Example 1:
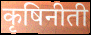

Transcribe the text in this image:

कृषिनीती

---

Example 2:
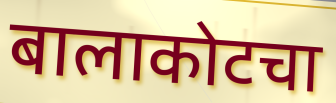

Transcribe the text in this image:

बालाकोटचा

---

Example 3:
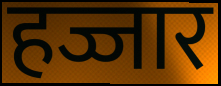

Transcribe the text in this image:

हज्जार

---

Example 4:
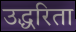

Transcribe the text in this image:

उद्धरिता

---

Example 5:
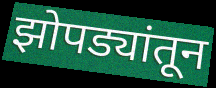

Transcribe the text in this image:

झोपड्यांतून